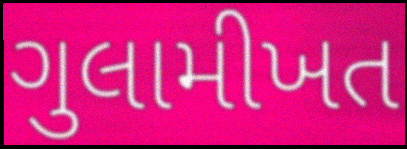
ગુલામીખત